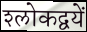
श्लोकद्वयें